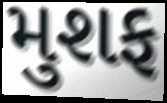
મુશફ